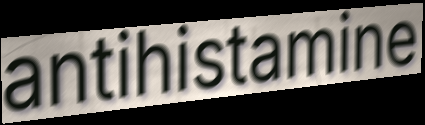
antihistamine